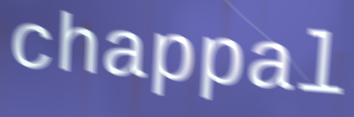
chappal